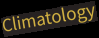
Climatology